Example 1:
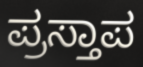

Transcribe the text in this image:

ಪ್ರಸ್ತಾಪ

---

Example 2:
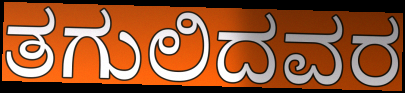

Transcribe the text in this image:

ತಗುಲಿದವರ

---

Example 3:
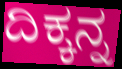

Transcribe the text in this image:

ದಿಕ್ಕನ್ನ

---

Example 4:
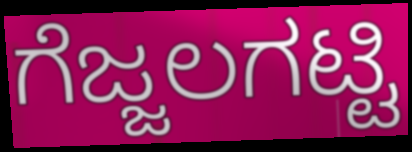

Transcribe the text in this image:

ಗೆಜ್ಜಲಗಟ್ಟಿ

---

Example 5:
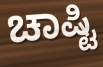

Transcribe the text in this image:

ಚಾಷ್ಟಿ